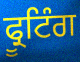
ਫ੍ਰੂਟਿੰਗ